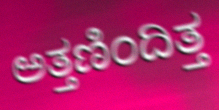
ಅತ್ತಣಿಂದಿತ್ತ